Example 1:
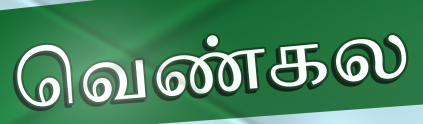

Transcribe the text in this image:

வெண்கல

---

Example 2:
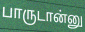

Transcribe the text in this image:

பாருடான்னு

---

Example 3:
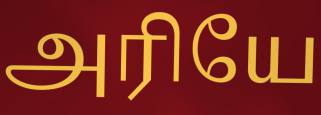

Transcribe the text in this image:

அரியே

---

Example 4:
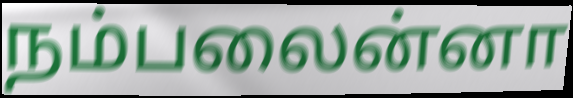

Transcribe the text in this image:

நம்பலைன்னா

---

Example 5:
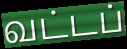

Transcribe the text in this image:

வட்டப்